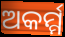
ଅକର୍ମ୍ମ